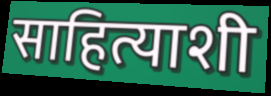
साहित्याशी